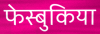
फेस्बुकिया